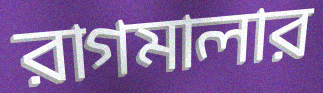
রাগমালার